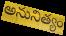
అనునిత్యం